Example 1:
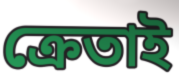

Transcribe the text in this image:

ক্রেতাই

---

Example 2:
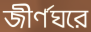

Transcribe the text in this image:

জীর্ণঘরে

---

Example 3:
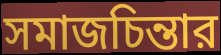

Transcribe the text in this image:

সমাজচিন্তার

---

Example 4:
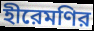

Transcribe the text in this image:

হীরেমণির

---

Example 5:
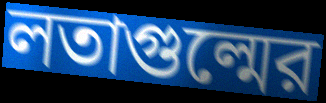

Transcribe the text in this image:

লতাগুল্মের